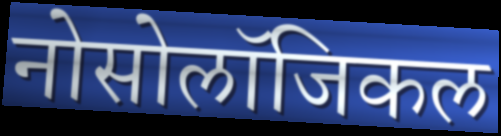
नोसोलॉजिकल